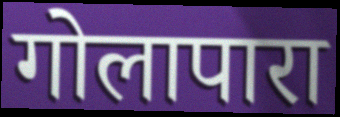
गोलापारा